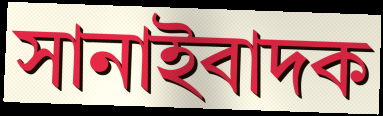
সানাইবাদক